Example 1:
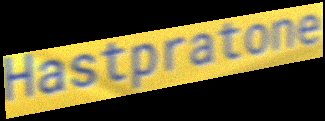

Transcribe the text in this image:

Hastpratone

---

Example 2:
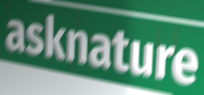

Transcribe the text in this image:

asknature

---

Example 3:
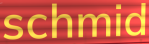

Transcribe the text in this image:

schmid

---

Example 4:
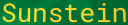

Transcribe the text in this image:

Sunstein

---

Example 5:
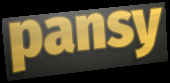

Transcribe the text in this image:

pansy